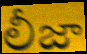
లీజా